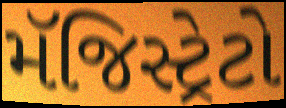
મૅજિસ્ટ્રેટો